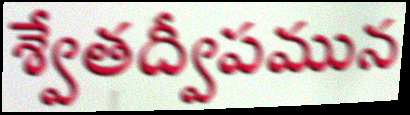
శ్వేతద్వీపమున